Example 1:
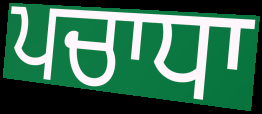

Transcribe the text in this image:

ਪਚਾਧਾ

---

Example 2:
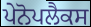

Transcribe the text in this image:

ਪੇਨੋਪਲੈਕਸ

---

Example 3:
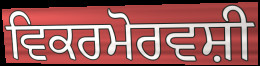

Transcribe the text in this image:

ਵਿਕਰਮੋਰਵਸ਼ੀ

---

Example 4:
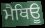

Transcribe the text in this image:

ਮੈਥਿਊ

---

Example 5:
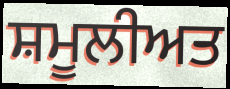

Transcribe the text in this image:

ਸ਼ਮੂਲੀਅਤ